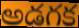
అడగక